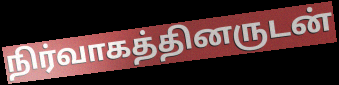
நிர்வாகத்தினருடன்